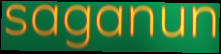
saganun